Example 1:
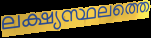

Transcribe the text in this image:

ലക്ഷ്യസ്ഥലത്തെ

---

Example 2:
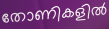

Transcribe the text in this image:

തോണികളിൽ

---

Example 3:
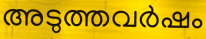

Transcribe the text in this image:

അടുത്തവർഷം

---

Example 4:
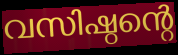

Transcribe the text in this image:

വസിഷ്ഠന്റെ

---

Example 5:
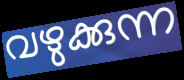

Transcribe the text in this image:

വഴുക്കുന്ന